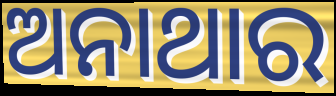
ଅନାଥାର